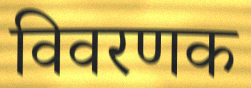
विवरणक